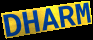
DHARM